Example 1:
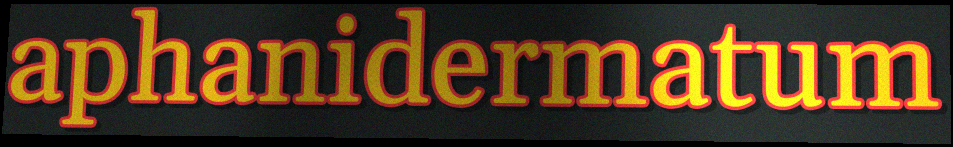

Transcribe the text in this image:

aphanidermatum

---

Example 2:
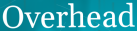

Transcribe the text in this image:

Overhead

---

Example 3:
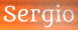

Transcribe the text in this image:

Sergio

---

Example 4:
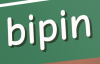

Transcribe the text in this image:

bipin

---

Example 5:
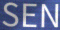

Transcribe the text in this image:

SEN